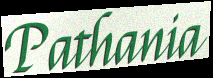
Pathania